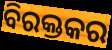
ବିରକ୍ତକର